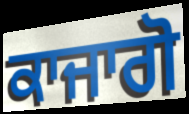
ਕਾਜਾਗੋ